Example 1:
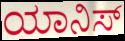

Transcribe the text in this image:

ಯಾನಿಸ್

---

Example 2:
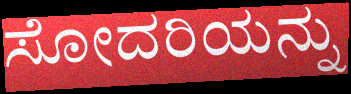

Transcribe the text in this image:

ಸೋದರಿಯನ್ನು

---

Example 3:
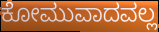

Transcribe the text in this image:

ಕೋಮುವಾದವಲ್ಲ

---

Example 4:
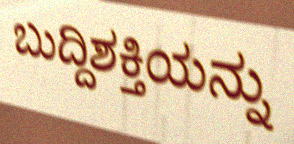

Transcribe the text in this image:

ಬುದ್ದಿಶಕ್ತಿಯನ್ನು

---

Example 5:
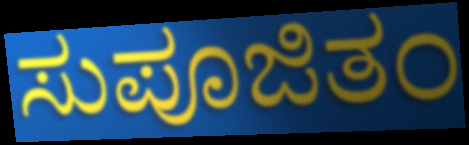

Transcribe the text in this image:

ಸುಪೂಜಿತಂ